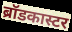
ब्रॉडकास्टर